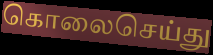
கொலைசெய்து